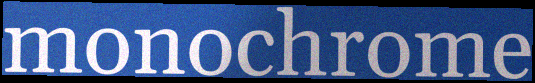
monochrome